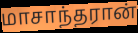
மாசாந்தரான்